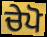
ਚੇਪੋ